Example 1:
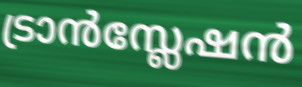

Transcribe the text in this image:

ട്രാൻസ്ലേഷൻ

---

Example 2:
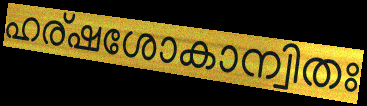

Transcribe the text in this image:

ഹര്ഷശോകാന്വിതഃ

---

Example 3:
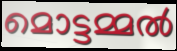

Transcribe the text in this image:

മൊട്ടമ്മൽ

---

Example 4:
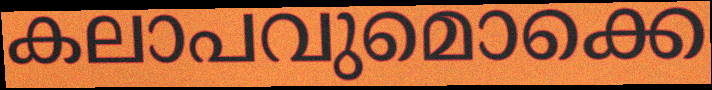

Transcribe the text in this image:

കലാപവുമൊക്കെ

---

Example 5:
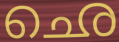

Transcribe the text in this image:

ഛെ